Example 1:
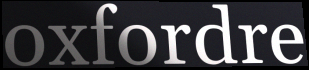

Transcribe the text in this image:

oxfordre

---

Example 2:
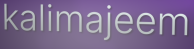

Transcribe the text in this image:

kalimajeem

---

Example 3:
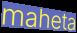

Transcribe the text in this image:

maheta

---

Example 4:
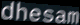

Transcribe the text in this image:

dhesam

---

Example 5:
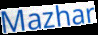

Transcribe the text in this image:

Mazhar